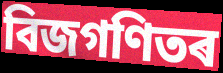
বিজগণিতৰ